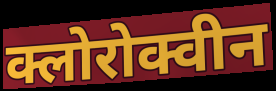
क्लोरोक्वीन